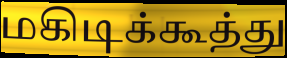
மகிடிக்கூத்து